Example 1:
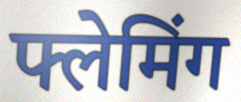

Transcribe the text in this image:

फ्लेमिंग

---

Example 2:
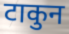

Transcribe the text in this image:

टाकुन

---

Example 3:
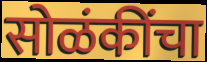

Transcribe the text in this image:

सोळंकींचा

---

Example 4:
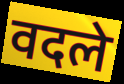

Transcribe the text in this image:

वदले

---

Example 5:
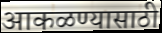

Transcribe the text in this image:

आकळण्यासाठी